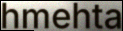
hmehta